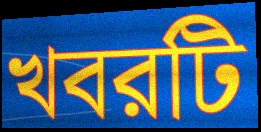
খবরটি